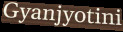
Gyanjyotini